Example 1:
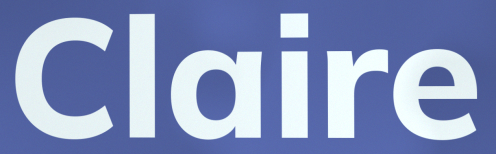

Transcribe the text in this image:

Claire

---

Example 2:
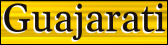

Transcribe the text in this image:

Guajarati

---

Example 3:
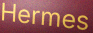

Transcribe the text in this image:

Hermes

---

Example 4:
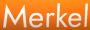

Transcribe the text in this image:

Merkel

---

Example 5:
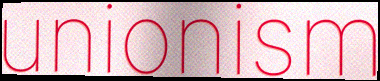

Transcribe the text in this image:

unionism